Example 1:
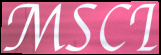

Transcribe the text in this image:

MSCI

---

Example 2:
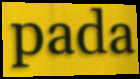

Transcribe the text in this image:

pada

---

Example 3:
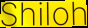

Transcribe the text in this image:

Shiloh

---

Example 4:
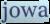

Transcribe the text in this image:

jowa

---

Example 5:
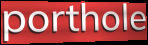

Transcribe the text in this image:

porthole